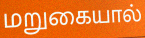
மறுகையால்